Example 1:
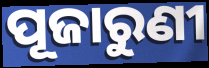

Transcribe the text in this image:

ପୂଜାରୁଣୀ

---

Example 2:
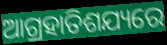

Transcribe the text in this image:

ଆଗ୍ରହାତିଶଯ୍ୟରେ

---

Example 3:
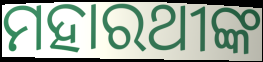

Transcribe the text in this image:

ମହାରଥୀଙ୍କ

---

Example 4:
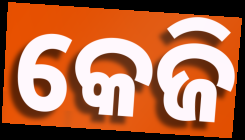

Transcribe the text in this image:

କେଜି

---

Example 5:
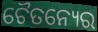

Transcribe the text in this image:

ଚୈତନ୍ୟେର